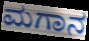
ಮಗಾನ